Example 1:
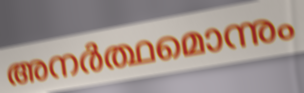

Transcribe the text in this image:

അനർത്ഥമൊന്നും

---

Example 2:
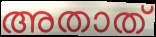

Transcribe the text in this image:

അതാത്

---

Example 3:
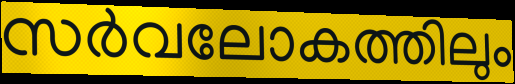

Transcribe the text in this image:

സർവലോകത്തിലും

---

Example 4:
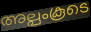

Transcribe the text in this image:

അല്പംകൂടെ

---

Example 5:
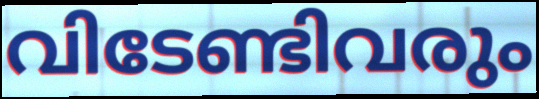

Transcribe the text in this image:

വിടേണ്ടിവരും